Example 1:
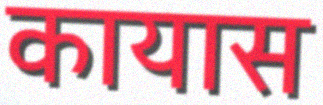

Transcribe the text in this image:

कायास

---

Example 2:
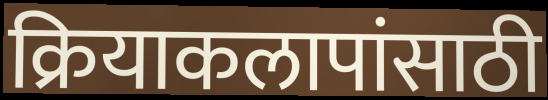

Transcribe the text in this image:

क्रियाकलापांसाठी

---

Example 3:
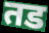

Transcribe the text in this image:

तड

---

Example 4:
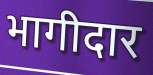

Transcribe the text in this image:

भागीदार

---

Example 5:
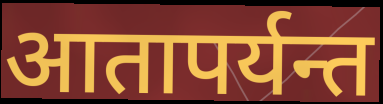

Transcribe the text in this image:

आतापर्यन्त